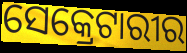
ସେକ୍ରେଟାରୀର